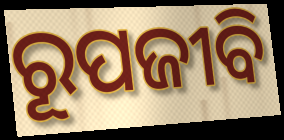
ରୂପଜୀବି